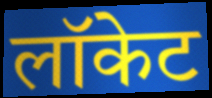
लॉकेट